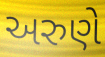
અરુણે